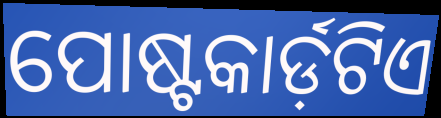
ପୋଷ୍ଟକାର୍ଡ଼ଟିଏ